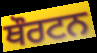
ਥੌਰਟਨ